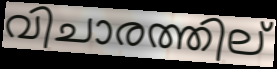
വിചാരത്തില്